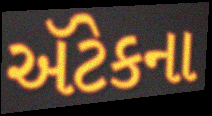
ઍટેકના